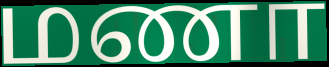
மணா